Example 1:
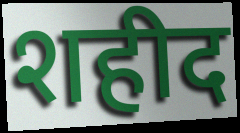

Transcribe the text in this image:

शहीद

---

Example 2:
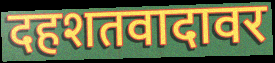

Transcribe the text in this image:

दहशतवादावर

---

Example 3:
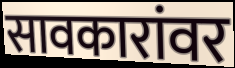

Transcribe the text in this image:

सावकारांवर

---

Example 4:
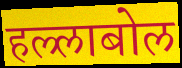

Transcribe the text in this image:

हल्लाबोल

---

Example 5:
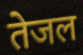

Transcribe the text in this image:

तेजल